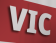
VIC